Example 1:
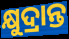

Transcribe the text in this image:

କ୍ଷୁଦ୍ରାନ୍ତ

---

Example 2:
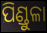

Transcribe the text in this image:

ପିଣ୍ଡୁଳା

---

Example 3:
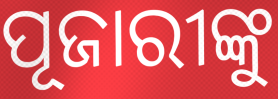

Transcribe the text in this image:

ପୂଜାରୀଙ୍କୁ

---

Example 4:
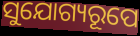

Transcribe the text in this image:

ସୁଯୋଗ୍ୟରୂପେ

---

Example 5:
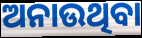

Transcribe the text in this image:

ଅନାଉଥିବା